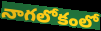
నాగలోకంలో